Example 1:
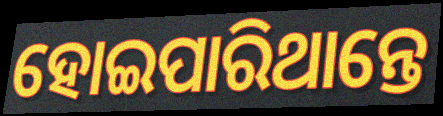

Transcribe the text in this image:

ହୋଇପାରିଥାନ୍ତେ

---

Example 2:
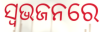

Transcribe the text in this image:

ସ୍ଵଭଜନରେ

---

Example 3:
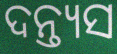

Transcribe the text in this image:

ଦନ୍ତ୍ୟସ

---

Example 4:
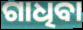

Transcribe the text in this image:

ଗାଧିବା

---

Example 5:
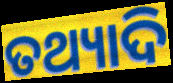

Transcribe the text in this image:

ତଥ୍ୟାଦି